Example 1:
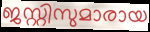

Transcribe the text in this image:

ജസ്റ്റിസുമാരായ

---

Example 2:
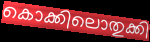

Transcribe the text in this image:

കൊക്കിലൊതുക്കി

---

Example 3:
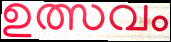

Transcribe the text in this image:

ഉത്സവം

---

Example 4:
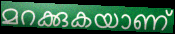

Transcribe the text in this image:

മറക്കുകയാണ്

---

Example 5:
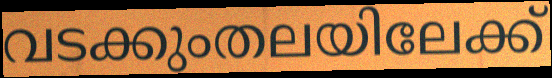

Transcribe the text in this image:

വടക്കുംതലയിലേക്ക്